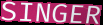
SINGER